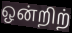
ஒன்றிற்